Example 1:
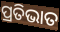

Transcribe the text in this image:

ପ୍ରତିଭାତ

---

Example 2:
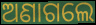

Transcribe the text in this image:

ଅଣାଗଲେ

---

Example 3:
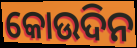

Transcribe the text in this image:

କୋଉଦିନ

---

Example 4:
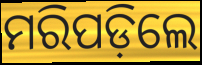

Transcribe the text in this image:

ମରିପଡ଼ିଲେ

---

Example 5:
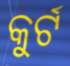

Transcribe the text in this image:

କୁର୍ଟ